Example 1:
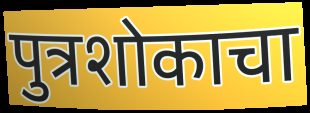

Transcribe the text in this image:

पुत्रशोकाचा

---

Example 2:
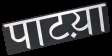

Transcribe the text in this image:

पाटय़ा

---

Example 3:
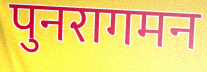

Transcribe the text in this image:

पुनरागमन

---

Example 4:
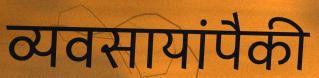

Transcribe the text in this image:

व्यवसायांपैकी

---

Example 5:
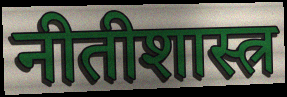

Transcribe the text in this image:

नीतीशास्त्र